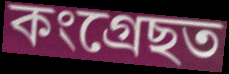
কংগ্ৰেছত